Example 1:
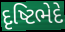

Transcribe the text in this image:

દૃષ્ટિભેદે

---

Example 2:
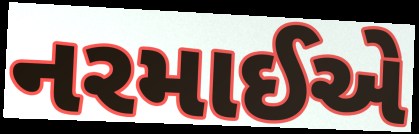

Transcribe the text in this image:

નરમાઈએ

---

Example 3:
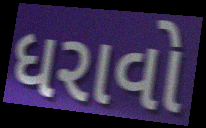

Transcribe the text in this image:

ધરાવો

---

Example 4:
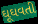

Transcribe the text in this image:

ઘૂઘવતી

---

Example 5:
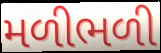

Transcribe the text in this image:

મળીભળી